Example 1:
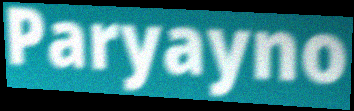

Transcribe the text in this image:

Paryayno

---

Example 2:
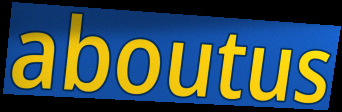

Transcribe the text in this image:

aboutus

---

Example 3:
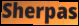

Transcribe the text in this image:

Sherpas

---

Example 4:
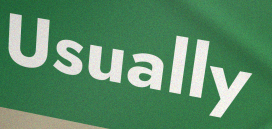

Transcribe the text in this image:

Usually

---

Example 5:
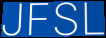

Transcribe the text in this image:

JFSL